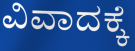
ವಿವಾದಕ್ಕೆ